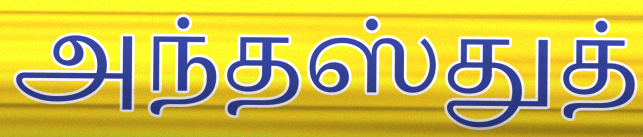
அந்தஸ்துத்